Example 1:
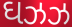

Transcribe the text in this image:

ઘઝઝ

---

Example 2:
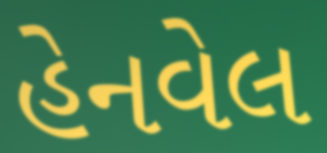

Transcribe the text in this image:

હેનવેલ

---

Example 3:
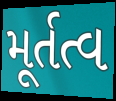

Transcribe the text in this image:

મૂર્તત્વ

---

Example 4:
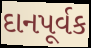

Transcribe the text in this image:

દાનપૂર્વક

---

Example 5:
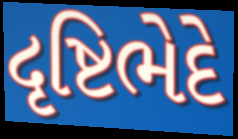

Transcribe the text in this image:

દૃષ્ટિભેદે